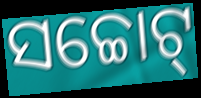
ସଚ୍ଚୋଟ୍